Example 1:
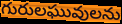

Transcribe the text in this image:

గురులఘువులను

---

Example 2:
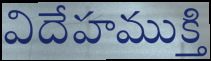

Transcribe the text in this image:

విదేహముక్తి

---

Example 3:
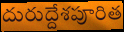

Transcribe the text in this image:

దురుద్దేశపూరిత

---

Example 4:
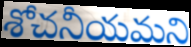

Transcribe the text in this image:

శోచనీయమని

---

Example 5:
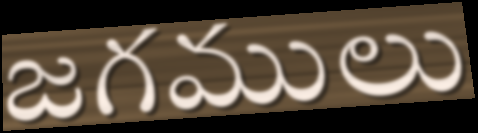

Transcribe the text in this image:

జగములు